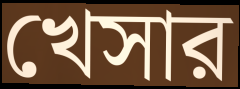
খেসার